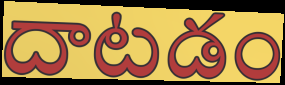
దాటడం